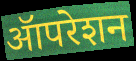
ॲापरेशन